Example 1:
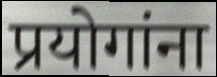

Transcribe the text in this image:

प्रयोगांना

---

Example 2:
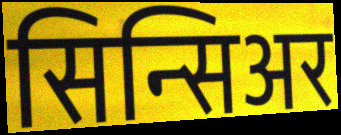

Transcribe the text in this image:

सिन्सिअर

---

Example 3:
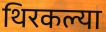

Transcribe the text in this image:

थिरकल्या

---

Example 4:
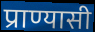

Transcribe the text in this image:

प्राण्यासी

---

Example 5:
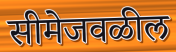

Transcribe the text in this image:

सीमेजवळील